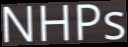
NHPs